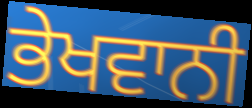
ਭੇਖਵਾਨੀ